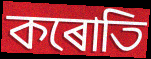
কৰোতি